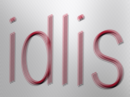
idlis